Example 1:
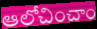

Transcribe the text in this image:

ఆలోచించాం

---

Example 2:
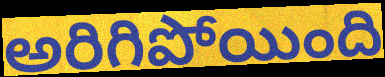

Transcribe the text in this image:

అరిగిపోయింది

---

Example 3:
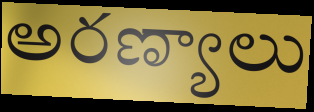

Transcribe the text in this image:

అరణ్యాలు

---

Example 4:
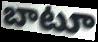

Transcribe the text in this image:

బాటూ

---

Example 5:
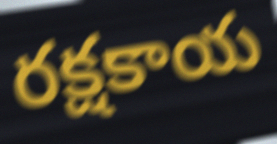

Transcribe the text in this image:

రక్షకాయ